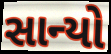
સાન્યો